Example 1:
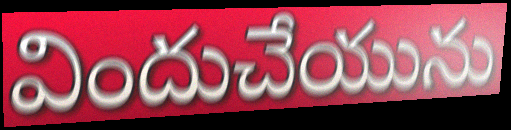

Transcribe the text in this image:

విందుచేయును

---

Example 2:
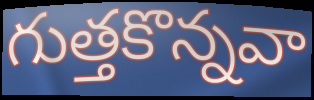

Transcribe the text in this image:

గుత్తకొన్నవా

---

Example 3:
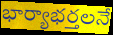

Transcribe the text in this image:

భార్యాభర్తలనే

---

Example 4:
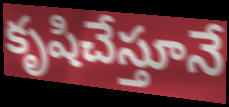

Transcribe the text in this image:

కృషిచేస్తూనే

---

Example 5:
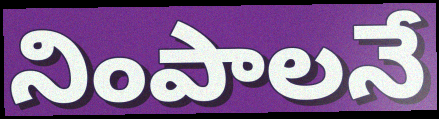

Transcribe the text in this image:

నింపాలనే